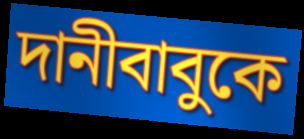
দানীবাবুকে